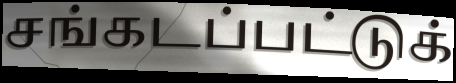
சங்கடப்பட்டுக்